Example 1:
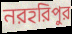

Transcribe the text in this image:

নরহরিপুর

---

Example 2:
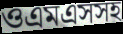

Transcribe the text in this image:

ওএমএসসহ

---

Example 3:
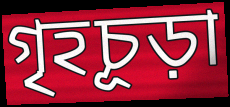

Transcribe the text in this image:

গৃহচূড়া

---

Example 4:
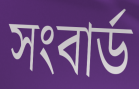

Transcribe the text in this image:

সংবার্ড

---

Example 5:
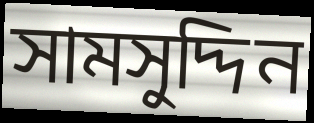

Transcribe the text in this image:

সামসুদ্দিন